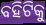
ବହିଟିକୁ